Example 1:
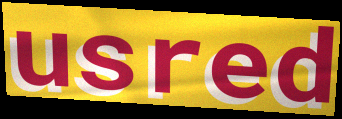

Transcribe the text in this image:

usred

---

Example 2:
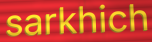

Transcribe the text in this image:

sarkhich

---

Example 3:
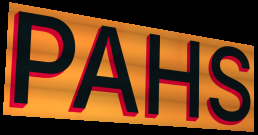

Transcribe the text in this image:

PAHS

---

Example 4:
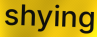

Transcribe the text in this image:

shying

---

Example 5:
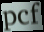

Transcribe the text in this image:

pcf